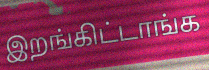
இறங்கிட்டாங்க